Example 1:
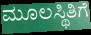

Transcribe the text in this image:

ಮೂಲಸ್ಥಿತಿಗೆ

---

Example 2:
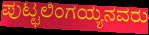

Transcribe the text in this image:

ಪುಟ್ಟಲಿಂಗಯ್ಯನವರು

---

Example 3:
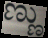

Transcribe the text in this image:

ಣ್ಣು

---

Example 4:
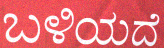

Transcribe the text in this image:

ಬಳಿಯದೆ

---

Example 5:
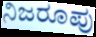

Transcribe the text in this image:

ನಿಜರೂಪು